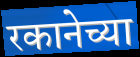
रकानेच्या